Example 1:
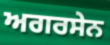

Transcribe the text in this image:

ਅਗਰਸੇਨ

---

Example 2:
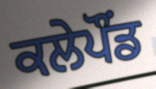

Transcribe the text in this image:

ਕਲੇਪੌਂਡ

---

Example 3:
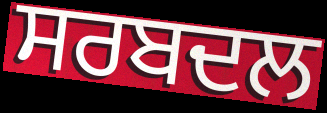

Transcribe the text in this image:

ਸਰਬਦਲ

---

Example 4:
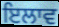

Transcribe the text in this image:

ਇਲਾਵ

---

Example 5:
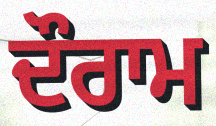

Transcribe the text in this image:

ਦੌਰਾਮ